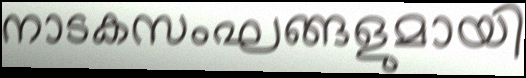
നാടകസംഘങ്ങളുമായി